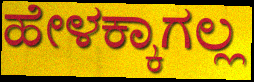
ಹೇಳಕ್ಕಾಗಲ್ಲ